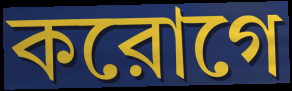
করোগে